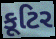
કૂટિર